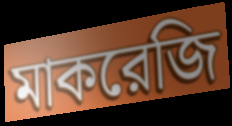
মাকরেজি